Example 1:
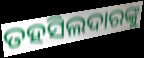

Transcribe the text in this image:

ତହସିଲଦାରଙ୍କୁ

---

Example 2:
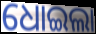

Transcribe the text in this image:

ଧୋଇଲା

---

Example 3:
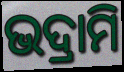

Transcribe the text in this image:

ଭଦ୍ରାମି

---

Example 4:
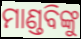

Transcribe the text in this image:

ମାଣ୍ଡବିଙ୍କୁ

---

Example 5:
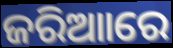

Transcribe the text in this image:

ଜରିଆାରେ